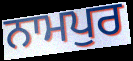
ਨਾਮਪੁਰ